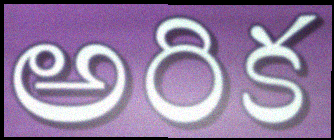
అరిక